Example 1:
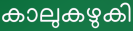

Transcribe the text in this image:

കാലുകഴുകി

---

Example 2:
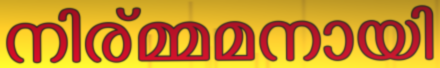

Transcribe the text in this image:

നിര്മ്മമനായി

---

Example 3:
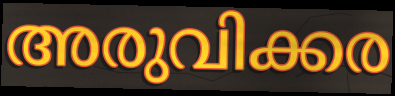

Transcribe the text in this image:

അരുവിക്കര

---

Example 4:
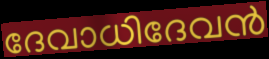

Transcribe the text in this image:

ദേവാധിദേവൻ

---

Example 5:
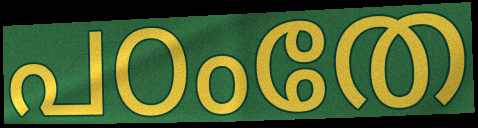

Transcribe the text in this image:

പഠംതേ